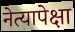
नेत्यापेक्षा